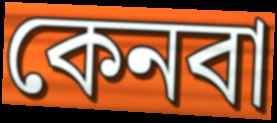
কেনবা